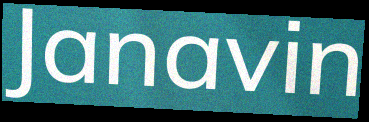
Janavin